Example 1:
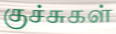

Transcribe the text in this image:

குச்சுகள்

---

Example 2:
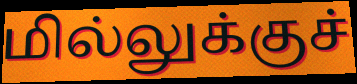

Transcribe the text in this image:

மில்லுக்குச்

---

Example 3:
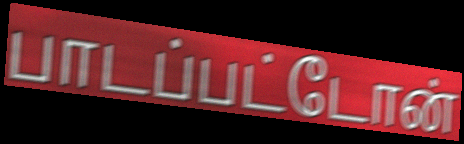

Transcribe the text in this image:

பாடப்பட்டோன்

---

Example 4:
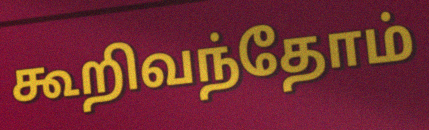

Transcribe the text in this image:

கூறிவந்தோம்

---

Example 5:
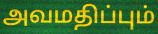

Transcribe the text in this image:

அவமதிப்பும்